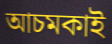
আচমকাই